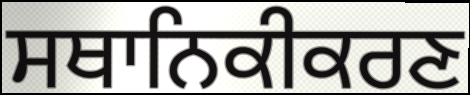
ਸਥਾਨਿਕੀਕਰਣ